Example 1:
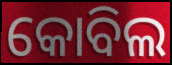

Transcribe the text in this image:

କୋବିଲ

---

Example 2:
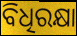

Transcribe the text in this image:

ବିଧିରକ୍ଷା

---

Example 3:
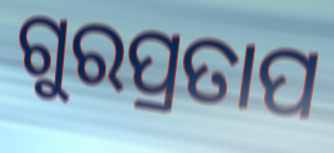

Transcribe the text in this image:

ଗୁରପ୍ରତାପ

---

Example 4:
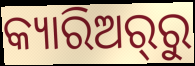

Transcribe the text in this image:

କ୍ୟାରିଅର୍‌ରୁ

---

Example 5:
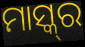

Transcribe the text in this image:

ମାସ୍କ୍‌ର